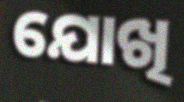
ଯୋଖି